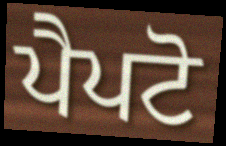
ਪੈਪਟੋ